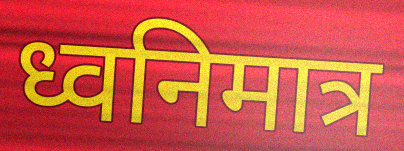
ध्वनिमात्र